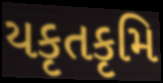
યકૃતકૃમિ